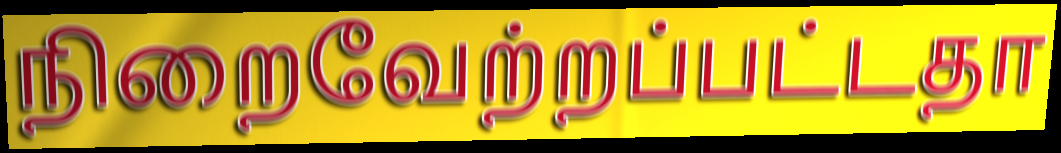
நிறைவேற்றப்பட்டதா